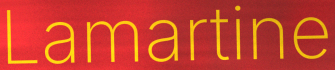
Lamartine